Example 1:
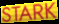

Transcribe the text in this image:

STARK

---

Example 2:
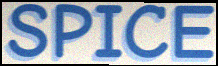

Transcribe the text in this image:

SPICE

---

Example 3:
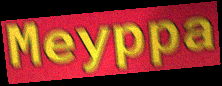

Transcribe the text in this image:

Meyppa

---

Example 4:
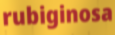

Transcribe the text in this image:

rubiginosa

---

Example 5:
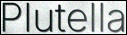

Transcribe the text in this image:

Plutella